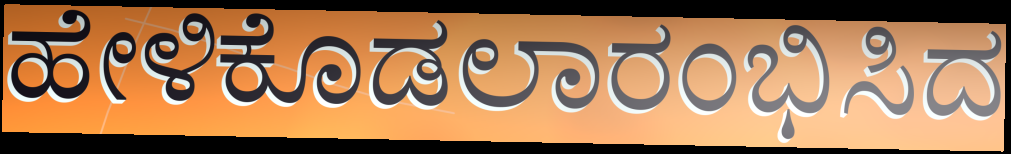
ಹೇಳಿಕೊಡಲಾರಂಭಿಸಿದ